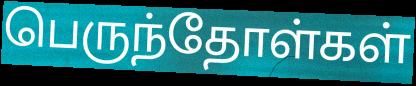
பெருந்தோள்கள்